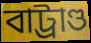
বাট্রাণ্ড